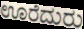
ಊರೆದುರು